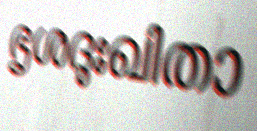
ഭൃശദുഃഖിതാ